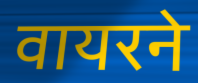
वायरने